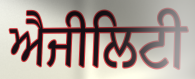
ਐਜੀਲਿਟੀ